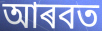
আৰবত